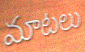
మాటలు